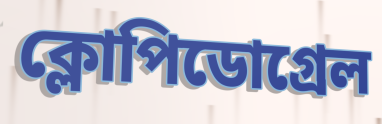
ক্লোপিডোগ্রেল